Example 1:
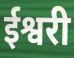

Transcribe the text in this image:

ईश्वरी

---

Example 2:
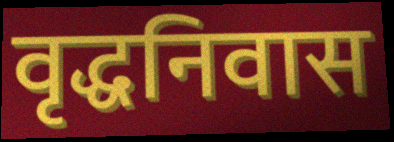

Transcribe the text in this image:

वृद्धनिवास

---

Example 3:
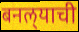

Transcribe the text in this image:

बनल्याची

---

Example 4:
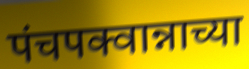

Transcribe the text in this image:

पंचपक्वान्नाच्या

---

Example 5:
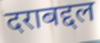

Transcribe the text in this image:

दराबद्दल